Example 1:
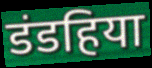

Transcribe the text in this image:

डंडहिया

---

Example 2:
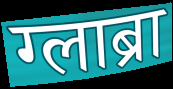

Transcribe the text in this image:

ग्लाब्रा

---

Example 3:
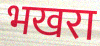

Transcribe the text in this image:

भखरा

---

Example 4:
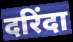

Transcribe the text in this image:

दरिंदा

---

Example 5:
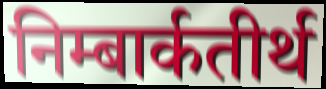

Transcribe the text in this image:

निम्बार्कतीर्थ